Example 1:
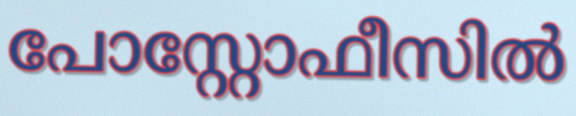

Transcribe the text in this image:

പോസ്റ്റോഫീസിൽ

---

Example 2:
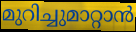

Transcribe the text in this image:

മുറിച്ചുമാറ്റാൻ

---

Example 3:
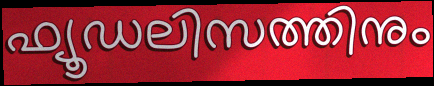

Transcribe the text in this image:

ഫ്യൂഡലിസത്തിനും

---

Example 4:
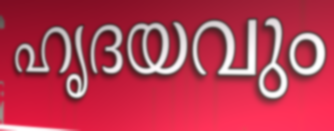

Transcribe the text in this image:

ഹൃദയവും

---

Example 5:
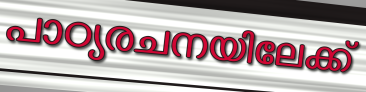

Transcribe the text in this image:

പാഠ്യരചനയിലേക്ക്